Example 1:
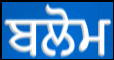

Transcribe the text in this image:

ਬਲੋਮ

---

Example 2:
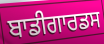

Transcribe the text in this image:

ਬਾਡੀਗਾਰਡਸ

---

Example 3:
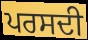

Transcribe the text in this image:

ਪਰਸਦੀ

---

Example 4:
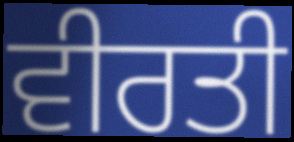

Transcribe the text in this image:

ਵੀਰਤੀ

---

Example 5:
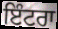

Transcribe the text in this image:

ਇੰਟਰਾ